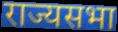
राज्यसभा